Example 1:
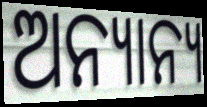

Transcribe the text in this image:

ଅନ୍ଯାନ୍ଯ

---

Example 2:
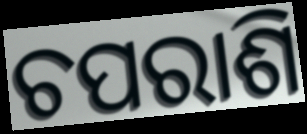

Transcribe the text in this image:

ଚପରାଶି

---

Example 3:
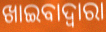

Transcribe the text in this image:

ଖାଇବାଦ୍ଵାରା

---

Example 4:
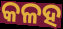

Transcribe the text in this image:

କଳହ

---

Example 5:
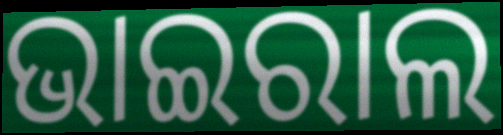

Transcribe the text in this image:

ଭାଇରାଲ